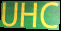
UHC